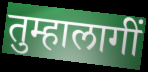
तुम्हालागीं